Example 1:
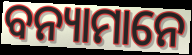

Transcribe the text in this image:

ବନ୍ୟାମାନେ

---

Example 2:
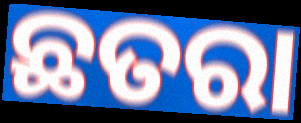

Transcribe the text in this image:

ଛତରା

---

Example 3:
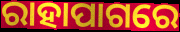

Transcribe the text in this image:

ରାହାପାଗରେ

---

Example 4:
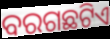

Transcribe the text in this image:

ବରଗଛଟିଏ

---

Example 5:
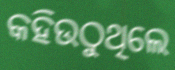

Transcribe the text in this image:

କହିଉଠୁଥିଲେ